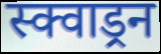
स्क्वाड्रन